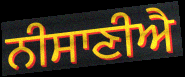
ਨੀਸਾਣੀਐ